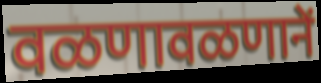
वळणावळणानें